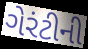
ગેરંટીની